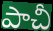
పాచీ